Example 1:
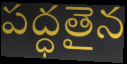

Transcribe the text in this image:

పద్ధతైన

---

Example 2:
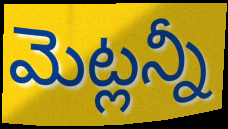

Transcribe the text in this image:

మెట్లన్నీ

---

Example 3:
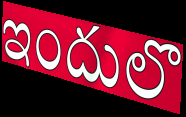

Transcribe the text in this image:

ఇందులొ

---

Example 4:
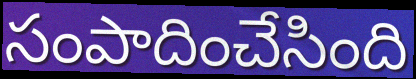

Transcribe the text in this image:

సంపాదించేసింది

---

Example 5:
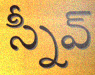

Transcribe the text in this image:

స్నీవ్